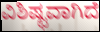
ವಿಶಿಷ್ಟವಾಗಿದೆ